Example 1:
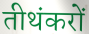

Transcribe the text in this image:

तीथंकरों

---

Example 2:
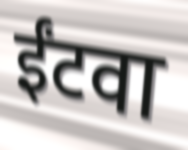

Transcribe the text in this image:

ईंटवा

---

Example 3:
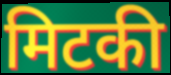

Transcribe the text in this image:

मिटकी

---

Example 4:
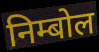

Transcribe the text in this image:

निम्बोल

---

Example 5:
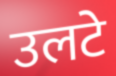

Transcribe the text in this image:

उलटे